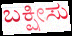
ಬಕ್ಷೀಸು